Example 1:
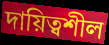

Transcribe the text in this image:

দায়িত্বশীল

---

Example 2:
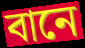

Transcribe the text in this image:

বানে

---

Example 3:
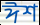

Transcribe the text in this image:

ঈশ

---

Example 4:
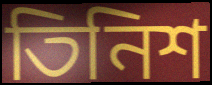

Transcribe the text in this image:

তিনিশ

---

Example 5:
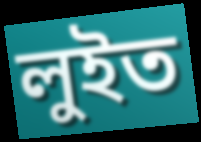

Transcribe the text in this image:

লুইত